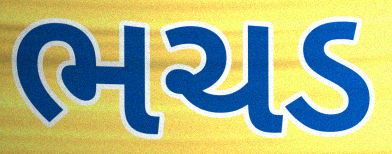
ભચડ